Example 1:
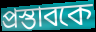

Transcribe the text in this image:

প্রস্তাবকে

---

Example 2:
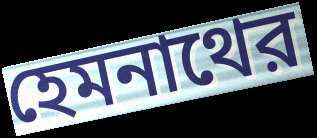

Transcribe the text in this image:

হেমনাথের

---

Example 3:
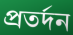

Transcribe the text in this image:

প্রতর্দন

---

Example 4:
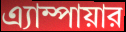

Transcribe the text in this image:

এ্যাম্পায়ার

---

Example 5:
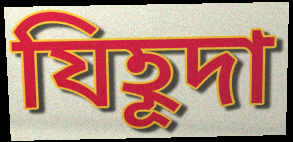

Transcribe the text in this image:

যিহূদা